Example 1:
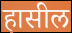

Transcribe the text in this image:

हासील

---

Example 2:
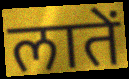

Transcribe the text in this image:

लातें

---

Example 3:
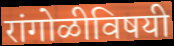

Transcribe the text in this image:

रांगोळीविषयी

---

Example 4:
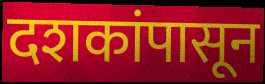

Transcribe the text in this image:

दशकांपासून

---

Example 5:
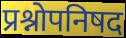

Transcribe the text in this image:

प्रश्नोपनिषद